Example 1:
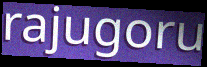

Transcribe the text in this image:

rajugoru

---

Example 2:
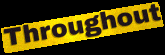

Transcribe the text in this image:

Throughout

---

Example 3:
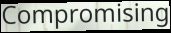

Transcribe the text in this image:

Compromising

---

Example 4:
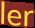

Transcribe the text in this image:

ler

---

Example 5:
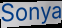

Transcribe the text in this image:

Sonya